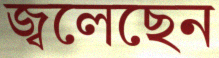
জ্বলেছেন